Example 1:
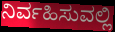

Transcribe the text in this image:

ನಿರ್ವಹಿಸುವಲ್ಲಿ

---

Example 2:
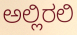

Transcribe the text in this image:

ಅಲ್ಲಿರಲಿ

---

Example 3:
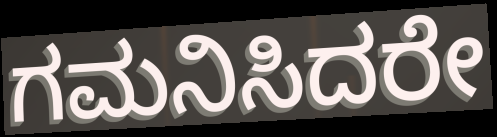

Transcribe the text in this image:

ಗಮನಿಸಿದರೇ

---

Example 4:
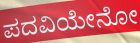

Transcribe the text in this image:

ಪದವಿಯೇನೋ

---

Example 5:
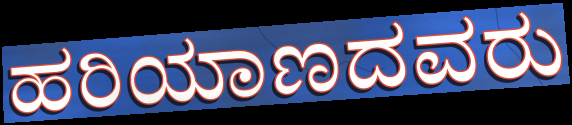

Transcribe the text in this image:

ಹರಿಯಾಣದವರು